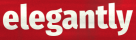
elegantly